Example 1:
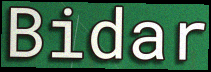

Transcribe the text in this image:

Bidar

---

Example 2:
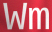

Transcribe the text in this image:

Wm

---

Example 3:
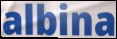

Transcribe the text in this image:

albina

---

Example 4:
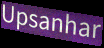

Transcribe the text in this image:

Upsanhar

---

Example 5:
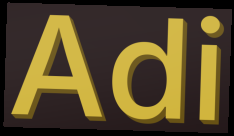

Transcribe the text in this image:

Adi